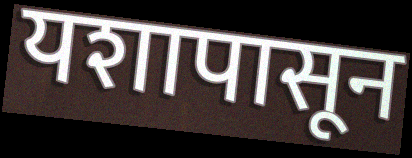
यशापासून